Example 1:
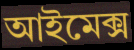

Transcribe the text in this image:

আইমেক্স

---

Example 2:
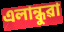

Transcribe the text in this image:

এলান্ধুৱা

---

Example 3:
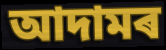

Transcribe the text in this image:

আদামৰ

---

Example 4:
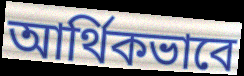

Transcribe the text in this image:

আৰ্থিকভাবে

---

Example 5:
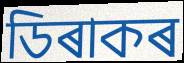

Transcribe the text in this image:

ডিৰাকৰ